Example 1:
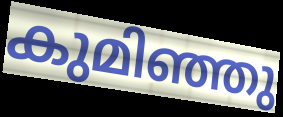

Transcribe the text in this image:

കുമിഞ്ഞു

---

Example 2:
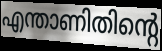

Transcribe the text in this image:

എന്താണിതിന്റെ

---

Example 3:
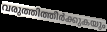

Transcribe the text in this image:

വരുത്തിത്തീർക്കുകയും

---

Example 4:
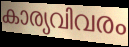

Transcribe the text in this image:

കാര്യവിവരം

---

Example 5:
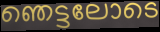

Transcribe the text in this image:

ഞെട്ടലോടെ